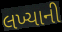
લખ્યાની